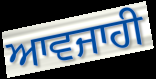
ਆਵਜਾਹੀ